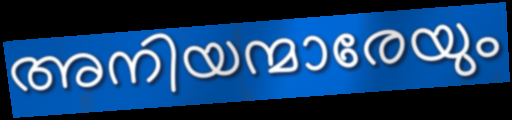
അനിയന്മാരേയും